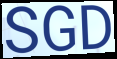
SGD